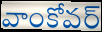
వాంకోవర్